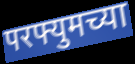
परफ्युमच्या